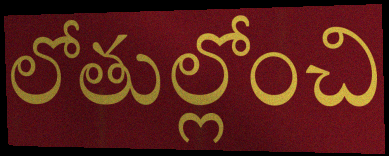
లోతుల్లోంచి